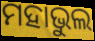
ମହାଭୁଲ